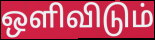
ஒளிவிடும்